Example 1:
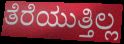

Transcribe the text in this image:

ತೆರೆಯುತ್ತಿಲ್ಲ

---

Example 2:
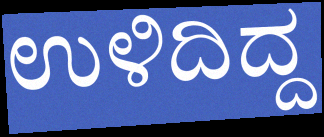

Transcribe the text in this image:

ಉಳಿದಿದ್ದ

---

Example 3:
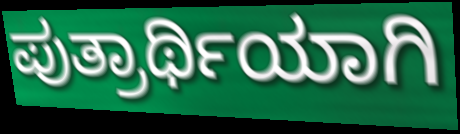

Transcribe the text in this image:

ಪುತ್ರಾರ್ಥಿಯಾಗಿ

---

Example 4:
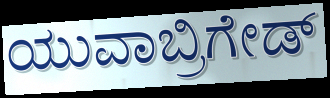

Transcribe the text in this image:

ಯುವಾಬ್ರಿಗೇಡ್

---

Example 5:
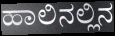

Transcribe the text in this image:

ಹಾಲಿನಲ್ಲಿನ